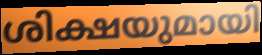
ശിക്ഷയുമായി